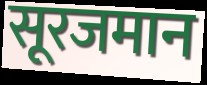
सूरजमान